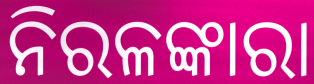
ନିରଳଙ୍କାରା